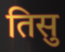
तिसु